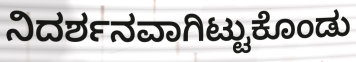
ನಿದರ್ಶನವಾಗಿಟ್ಟುಕೊಂಡು